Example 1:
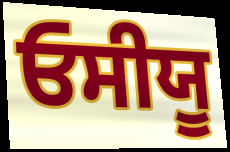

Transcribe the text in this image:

ਓਸੀਯੂ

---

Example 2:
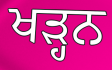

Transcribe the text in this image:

ਖੜ੍ਹਨ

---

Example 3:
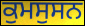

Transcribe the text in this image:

ਕੁਮਸੁਸਨ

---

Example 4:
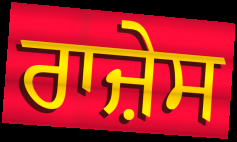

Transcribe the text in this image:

ਰਾਜ਼ੇਸ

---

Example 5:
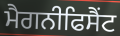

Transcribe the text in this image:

ਮੈਗਨੀਫਿਸੈਂਟ